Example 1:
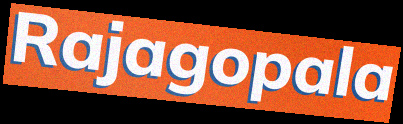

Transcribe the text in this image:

Rajagopala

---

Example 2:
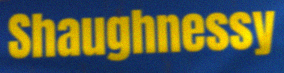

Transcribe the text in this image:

Shaughnessy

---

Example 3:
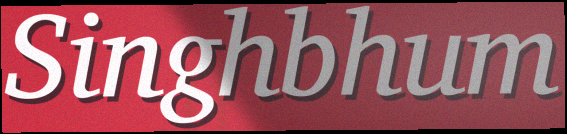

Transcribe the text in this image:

Singhbhum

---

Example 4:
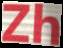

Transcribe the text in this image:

Zh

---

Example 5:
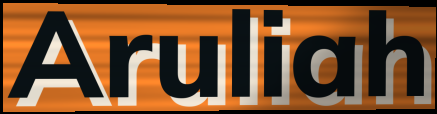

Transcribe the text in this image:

Aruliah